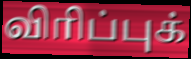
விரிப்புக்